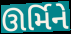
ઊર્મિને